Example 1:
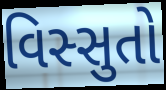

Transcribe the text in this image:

વિસ્સુતો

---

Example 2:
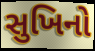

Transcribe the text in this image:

સુખિનો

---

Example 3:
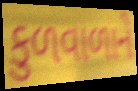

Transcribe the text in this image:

કુળવાળાને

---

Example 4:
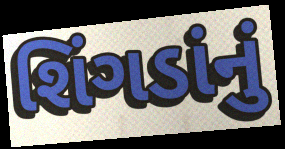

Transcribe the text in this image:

શિંગડાંનું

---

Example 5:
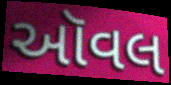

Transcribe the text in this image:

ઑવલ